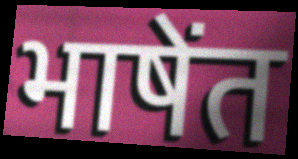
भाषेंत